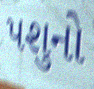
પશુનો